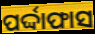
ପର୍ଦ୍ଦାଫାସ